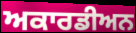
ਅਕਾਰਡੀਅਨ